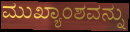
ಮುಖ್ಯಾಂಶವನ್ನು